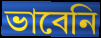
ভাবেনি